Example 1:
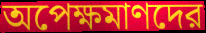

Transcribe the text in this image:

অপেক্ষমাণদের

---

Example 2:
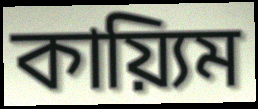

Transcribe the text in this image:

কায়্যিম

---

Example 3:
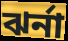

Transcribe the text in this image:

ঝর্না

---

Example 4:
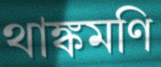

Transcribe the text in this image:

থাঙ্কমণি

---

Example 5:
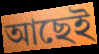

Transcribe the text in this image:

আছেই